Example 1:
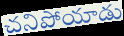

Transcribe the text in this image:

చనిపోయాడు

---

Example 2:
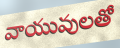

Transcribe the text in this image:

వాయువులతో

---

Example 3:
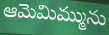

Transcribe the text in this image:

ఆమెమిమ్మును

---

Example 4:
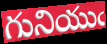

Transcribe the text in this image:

గునియుఁ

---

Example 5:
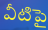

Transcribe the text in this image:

వీటిపై